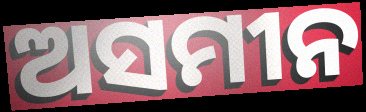
ଅସମୀନ